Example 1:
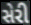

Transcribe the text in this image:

સેરી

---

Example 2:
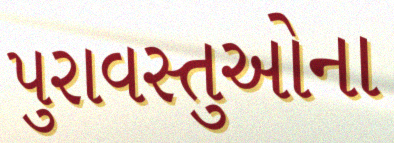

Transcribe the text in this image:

પુરાવસ્તુઓના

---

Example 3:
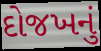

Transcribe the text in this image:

દોજખનું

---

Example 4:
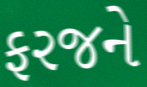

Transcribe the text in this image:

ફરજને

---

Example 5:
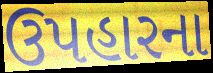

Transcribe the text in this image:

ઉપહારના